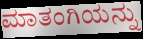
ಮಾತಂಗಿಯನ್ನು